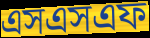
এসএসএফ